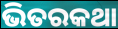
ଭିତରକଥା